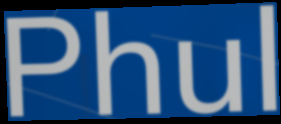
Phul